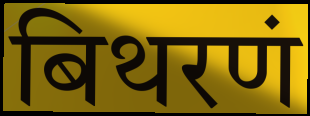
बिथरणं